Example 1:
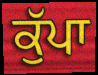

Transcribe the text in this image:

ਕੁੱਪਾ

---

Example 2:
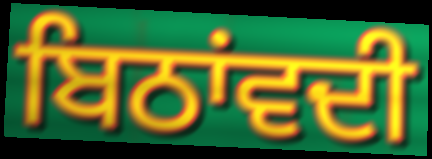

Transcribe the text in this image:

ਬਿਠਾਂਵਦੀ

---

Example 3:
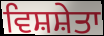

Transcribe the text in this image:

ਵਿਸ਼ਸ਼ੇਤਾ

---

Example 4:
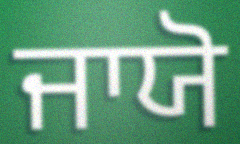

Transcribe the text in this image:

ਜਾਯੋ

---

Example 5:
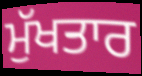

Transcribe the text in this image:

ਮੁੱਖਤਾਰ